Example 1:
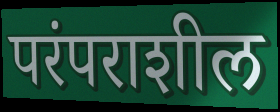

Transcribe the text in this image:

परंपराशील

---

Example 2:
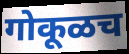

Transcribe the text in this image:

गोकूळच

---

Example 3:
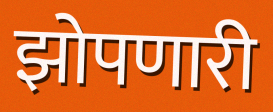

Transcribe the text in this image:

झोपणारी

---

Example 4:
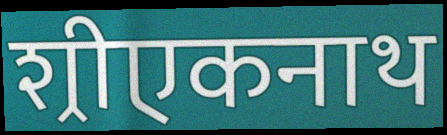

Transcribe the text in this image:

श्रीएकनाथ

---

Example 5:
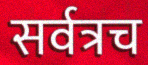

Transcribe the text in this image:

सर्वत्रच